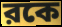
রকে